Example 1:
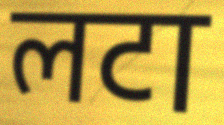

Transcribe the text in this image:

लटा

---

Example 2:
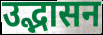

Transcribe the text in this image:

उद्भासन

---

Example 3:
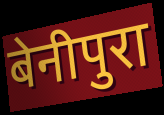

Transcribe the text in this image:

बेनीपुरा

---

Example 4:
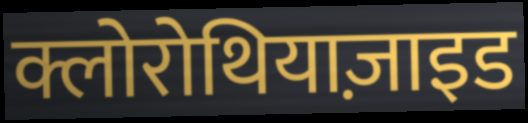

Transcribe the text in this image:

क्लोरोथियाज़ाइड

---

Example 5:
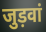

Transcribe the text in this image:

जुड़वां